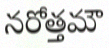
నరోత్తమౌ